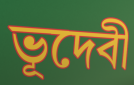
ভূদেবী